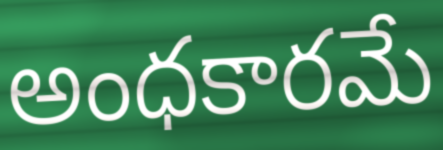
అంధకారమే